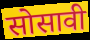
सोसावी